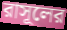
রাসূলের